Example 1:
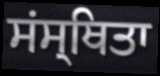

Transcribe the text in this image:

ਸਂਸ੍ਥਿਤਾ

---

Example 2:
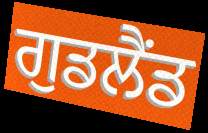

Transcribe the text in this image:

ਗੁਡਲੈਂਡ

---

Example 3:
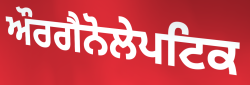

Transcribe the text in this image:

ਔਰਗੈਨੋਲੇਪਟਿਕ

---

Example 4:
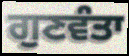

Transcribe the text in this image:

ਗੁਣਵੰਤਾ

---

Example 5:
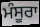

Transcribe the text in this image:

ਮੰਸੂਰਾ